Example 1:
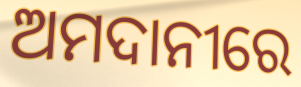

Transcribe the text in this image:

ଅମଦାନୀରେ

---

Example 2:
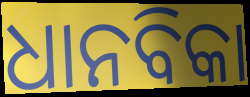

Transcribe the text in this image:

ଧାନବିକା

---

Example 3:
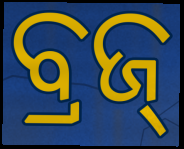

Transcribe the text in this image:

ବ୍ରଜ୍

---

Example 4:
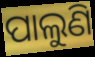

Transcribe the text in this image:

ପାଲୁଣି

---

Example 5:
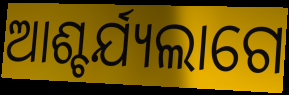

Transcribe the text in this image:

ଆଶ୍ଚର୍ଯ୍ୟଲାଗେ